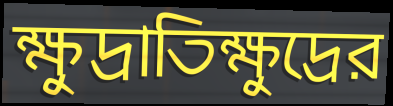
ক্ষুদ্রাতিক্ষুদ্রের